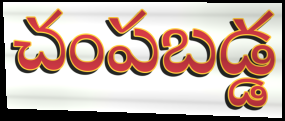
చంపబడ్డ